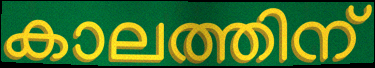
കാലത്തിന്